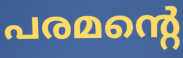
പരമന്റെ